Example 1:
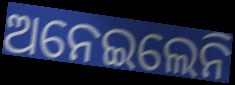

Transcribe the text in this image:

ଅନେଇଲେନି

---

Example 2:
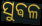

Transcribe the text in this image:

ସୁଵଳ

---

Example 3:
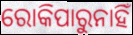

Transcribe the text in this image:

ରୋକିପାରୁନାହିଁ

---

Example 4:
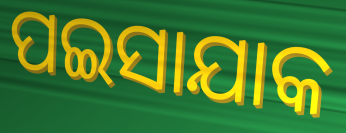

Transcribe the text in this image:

ପଇସାଯାକ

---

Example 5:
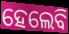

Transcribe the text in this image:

ହେଲେବି